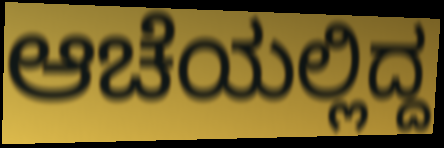
ಆಚೆಯಲ್ಲಿದ್ದ